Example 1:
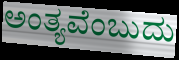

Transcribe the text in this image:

ಅಂತ್ಯವೆಂಬುದು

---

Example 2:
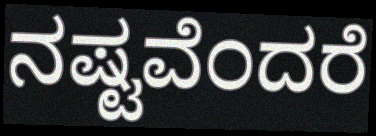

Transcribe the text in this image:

ನಷ್ಟವೆಂದರೆ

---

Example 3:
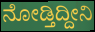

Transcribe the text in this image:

ನೋಡ್ತಿದ್ದೀನಿ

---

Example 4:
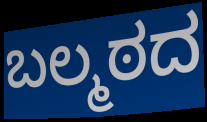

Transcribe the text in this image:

ಬಲ್ಮಠದ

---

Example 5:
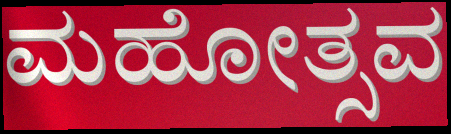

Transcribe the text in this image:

ಮಹೋತ್ಸವ